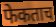
फेकताच